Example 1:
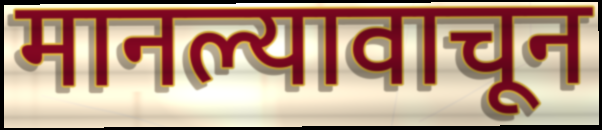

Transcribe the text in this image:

मानल्यावाचून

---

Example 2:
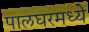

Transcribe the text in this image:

पालघरमध्ये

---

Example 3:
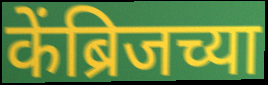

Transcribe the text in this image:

केंब्रिजच्या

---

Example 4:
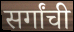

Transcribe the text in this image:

सर्गांची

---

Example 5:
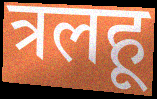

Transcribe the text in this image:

त्रलहू